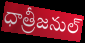
ధాత్రీజనుల్